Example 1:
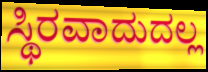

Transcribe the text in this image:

ಸ್ಥಿರವಾದುದಲ್ಲ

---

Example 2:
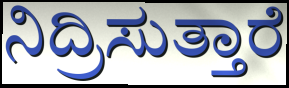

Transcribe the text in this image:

ನಿದ್ರಿಸುತ್ತಾರೆ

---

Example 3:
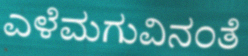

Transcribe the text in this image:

ಎಳೆಮಗುವಿನಂತೆ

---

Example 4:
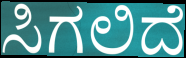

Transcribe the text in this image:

ಸಿಗಲಿದೆ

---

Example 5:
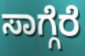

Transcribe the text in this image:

ಸಾಗ್ಗೆರೆ